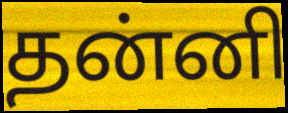
தன்னி